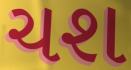
ચશ